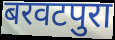
बरवटपुरा